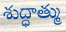
శుద్ధాత్ము